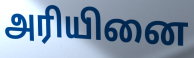
அரியினை